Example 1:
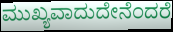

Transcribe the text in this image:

ಮುಖ್ಯವಾದುದೇನೆಂದರೆ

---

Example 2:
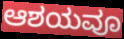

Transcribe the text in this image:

ಆಶಯವೂ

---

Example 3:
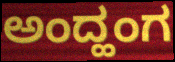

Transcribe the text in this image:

ಅಂದ್ಹಂಗ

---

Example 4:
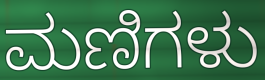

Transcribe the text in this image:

ಮಣಿಗಳು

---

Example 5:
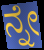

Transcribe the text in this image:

ನ್ನೇ